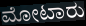
ಮೋಟಾರು